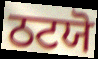
ਠਟਯੋ